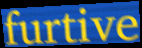
furtive